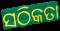
ସଠିକତା